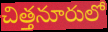
చిత్తనూరులో